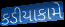
કડીયાકામે